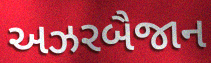
અઝરબૈજાન